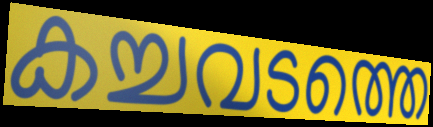
കച്ചവടത്തെ